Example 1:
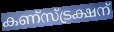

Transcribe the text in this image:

കണ്സ്ട്രക്ഷന്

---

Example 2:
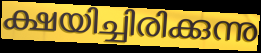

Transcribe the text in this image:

ക്ഷയിച്ചിരിക്കുന്നു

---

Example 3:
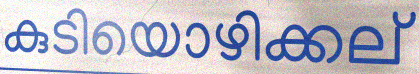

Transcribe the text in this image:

കുടിയൊഴിക്കല്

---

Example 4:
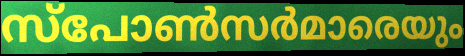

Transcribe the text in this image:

സ്പോൺസർമാരെയും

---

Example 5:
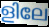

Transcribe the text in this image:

ളിലേ